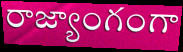
రాజ్యాంగంగా